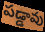
పడ్డావు